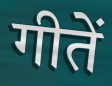
गीतें